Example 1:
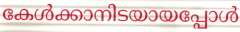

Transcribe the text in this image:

കേൾക്കാനിടയായപ്പോൾ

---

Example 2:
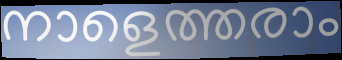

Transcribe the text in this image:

നാളെത്തരാം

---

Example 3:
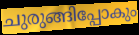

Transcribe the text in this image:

ചുരുങ്ങിപ്പോകും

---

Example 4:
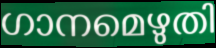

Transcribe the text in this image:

ഗാനമെഴുതി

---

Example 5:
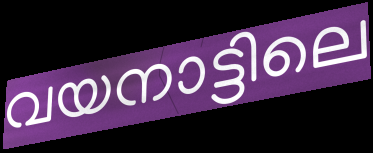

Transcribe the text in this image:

വയനാട്ടിലെ